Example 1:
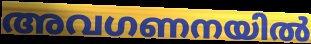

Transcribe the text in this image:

അവഗണനയിൽ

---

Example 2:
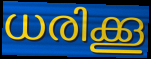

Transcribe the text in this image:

ധരിക്കൂ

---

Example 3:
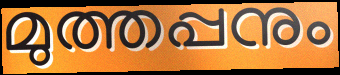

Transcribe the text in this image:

മുത്തപ്പനും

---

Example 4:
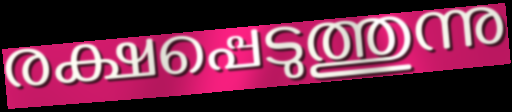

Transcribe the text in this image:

രക്ഷപ്പെടുത്തുന്നു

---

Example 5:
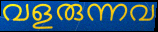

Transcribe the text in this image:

വളരുന്നവ